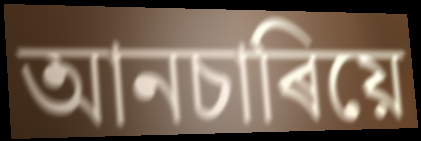
আনচাৰিয়ে